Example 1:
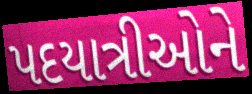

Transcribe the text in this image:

પદયાત્રીઓને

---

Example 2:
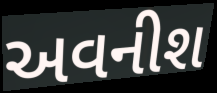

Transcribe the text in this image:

અવનીશ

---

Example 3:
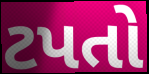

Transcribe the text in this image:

ટપતો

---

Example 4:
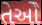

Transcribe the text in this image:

તેઓે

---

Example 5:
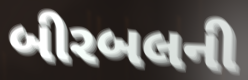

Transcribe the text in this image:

બીરબલની